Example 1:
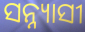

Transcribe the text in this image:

ସନ୍ନ୍ୟାସୀ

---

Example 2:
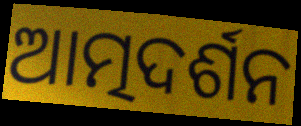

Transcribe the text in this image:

ଆତ୍ମଦର୍ଶନ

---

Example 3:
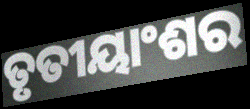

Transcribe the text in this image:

ତୃତୀୟାଂଶର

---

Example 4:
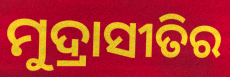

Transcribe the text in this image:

ମୁଦ୍ରାସୀତିର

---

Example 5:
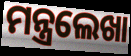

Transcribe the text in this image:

ମନ୍ତ୍ରଲେଖା